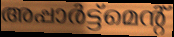
അപ്പാർട്ട്മെന്റ്